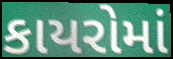
કાયરોમાં